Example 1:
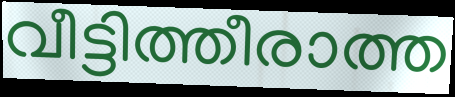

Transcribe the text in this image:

വീട്ടിത്തീരാത്ത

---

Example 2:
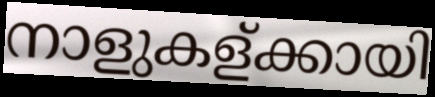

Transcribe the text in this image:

നാളുകള്ക്കായി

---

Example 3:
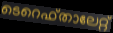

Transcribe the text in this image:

ടെറെഫ്താലേറ്റ്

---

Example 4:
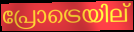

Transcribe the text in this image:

പ്രോട്രെയില്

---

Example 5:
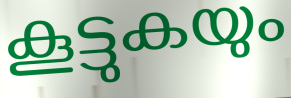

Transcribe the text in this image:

കൂട്ടുകയും